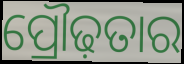
ପ୍ରୌଢ଼ତାର